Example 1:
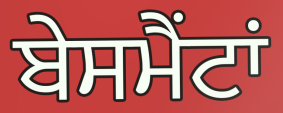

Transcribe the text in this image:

ਬੇਸਮੈਂਟਾਂ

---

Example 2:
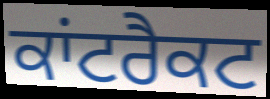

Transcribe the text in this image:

ਕਾਂਟਰੈਕਟ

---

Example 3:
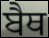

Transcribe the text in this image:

ਬੈਥ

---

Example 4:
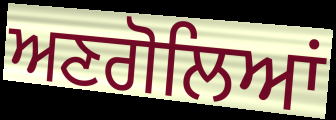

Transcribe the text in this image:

ਅਣਗੋਲਿਆਂ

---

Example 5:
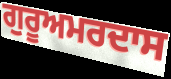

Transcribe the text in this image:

ਗੁਰੂਅਮਰਦਾਸ